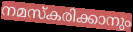
നമസ്കരിക്കാനും